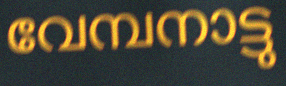
വേമ്പനാട്ടു